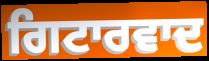
ਗਿਟਾਰਵਾਦ